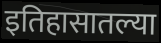
इतिहासातल्या